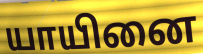
யாயினை